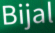
Bijal